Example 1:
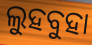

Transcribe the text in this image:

ଲୁହବୁହା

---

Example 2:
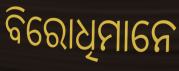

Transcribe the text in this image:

ବିରୋଧିମାନେ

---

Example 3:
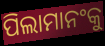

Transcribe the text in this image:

ପିଲାମାନଂକୁ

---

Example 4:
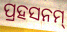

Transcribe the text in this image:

ପ୍ରହସନମ୍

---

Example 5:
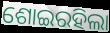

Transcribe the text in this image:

ଶୋଇରହିଲା